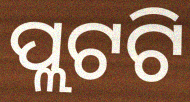
ପ୍ଲଟଟି